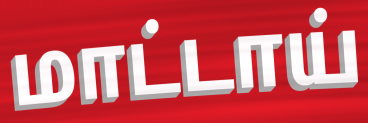
மாட்டாய்